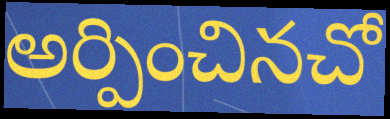
అర్పించినచో